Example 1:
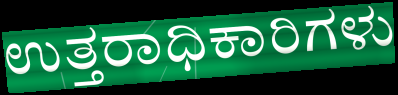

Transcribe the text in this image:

ಉತ್ತರಾಧಿಕಾರಿಗಳು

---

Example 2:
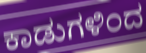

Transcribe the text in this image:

ಕಾಡುಗಳಿಂದ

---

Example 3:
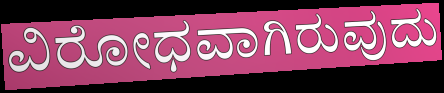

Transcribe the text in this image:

ವಿರೋಧವಾಗಿರುವುದು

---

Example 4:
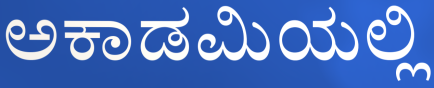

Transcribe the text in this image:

ಅಕಾಡಮಿಯಲ್ಲಿ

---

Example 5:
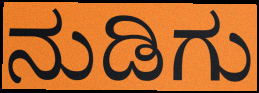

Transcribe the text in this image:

ನುಡಿಗು